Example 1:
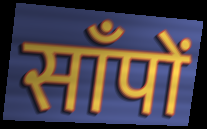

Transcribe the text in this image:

साँपों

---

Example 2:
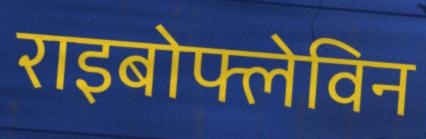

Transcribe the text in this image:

राइबोफ्लेविन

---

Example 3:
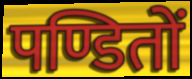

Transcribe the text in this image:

पण्डितों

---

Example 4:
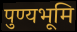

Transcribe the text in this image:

पुण्यभूमि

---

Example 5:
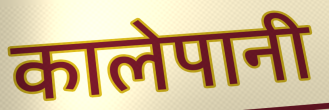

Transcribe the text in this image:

कालेपानी